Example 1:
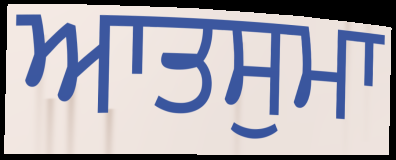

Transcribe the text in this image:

ਆਤਸੁਮਾ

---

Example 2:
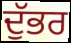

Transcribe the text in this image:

ਦੁੱਭਰ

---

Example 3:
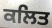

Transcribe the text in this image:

ਕਲਿਤ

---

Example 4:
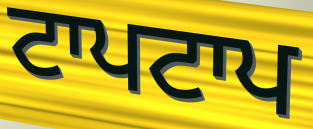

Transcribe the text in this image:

ਟਾਪਟਾਪ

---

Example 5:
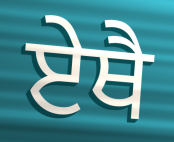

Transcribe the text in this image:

ਏਥੈ